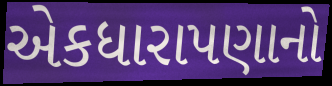
એકધારાપણાનો